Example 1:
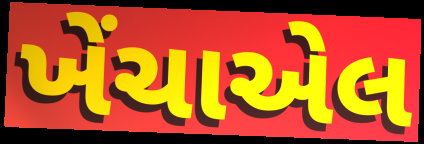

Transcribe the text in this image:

ખેંચાએલ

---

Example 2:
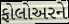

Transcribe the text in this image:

ફોલોઅરને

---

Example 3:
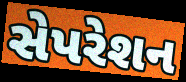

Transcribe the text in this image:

સેપરેશન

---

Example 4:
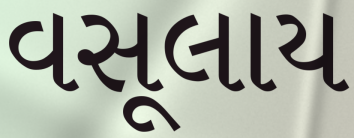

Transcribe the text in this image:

વસૂલાય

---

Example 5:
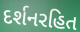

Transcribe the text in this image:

દર્શનરહિત